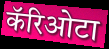
कॅरिओटा